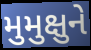
મુમુક્ષુને